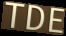
TDE